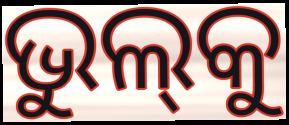
ଭୁଲ୍‍କୁ